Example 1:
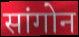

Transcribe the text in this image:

सांगोन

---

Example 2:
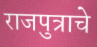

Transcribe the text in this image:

राजपुत्राचे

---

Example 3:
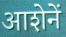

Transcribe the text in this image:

आशेनें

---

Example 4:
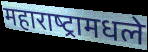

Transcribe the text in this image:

महाराष्ट्रामधले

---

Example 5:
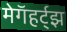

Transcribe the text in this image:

मेगॅहर्ट्‌झ